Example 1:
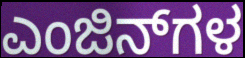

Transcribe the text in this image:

ಎಂಜಿನ್‌ಗಳ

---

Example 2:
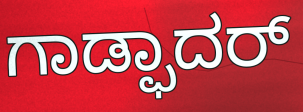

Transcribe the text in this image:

ಗಾಡ್ಫಾದರ್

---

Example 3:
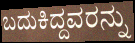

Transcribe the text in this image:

ಬದುಕಿದ್ದವರನ್ನು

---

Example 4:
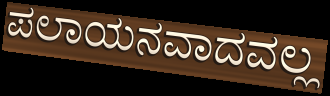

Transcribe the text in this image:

ಪಲಾಯನವಾದವಲ್ಲ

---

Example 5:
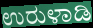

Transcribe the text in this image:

ಉರುಳಾಡಿ